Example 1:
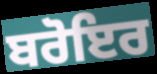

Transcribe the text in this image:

ਬਰੋਇਰ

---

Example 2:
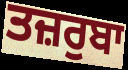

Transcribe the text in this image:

ਤਜ਼ਰੁਬਾ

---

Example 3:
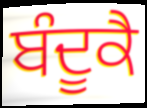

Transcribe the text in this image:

ਬੰਦੂਕੈ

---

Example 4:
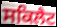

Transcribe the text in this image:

ਸਕਿਲੈਟ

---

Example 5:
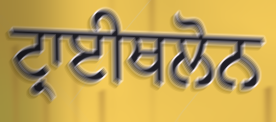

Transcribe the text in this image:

ਟ੍ਰਾਈਥਲੋਨ